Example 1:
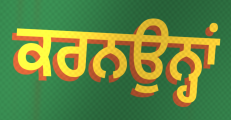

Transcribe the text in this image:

ਕਰਨਉਨ੍ਹਾਂ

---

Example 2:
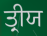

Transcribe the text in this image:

ਤ੍ਰੀਯ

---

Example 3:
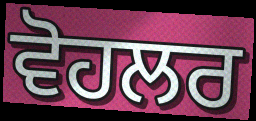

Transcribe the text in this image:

ਵੋਹਲਰ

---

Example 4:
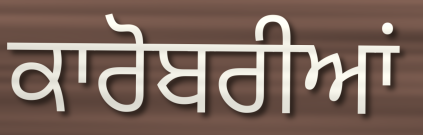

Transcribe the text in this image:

ਕਾਰੋਬਰੀਆਂ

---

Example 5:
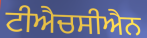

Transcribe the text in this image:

ਟੀਐਚਸੀਐਨ